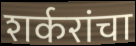
शर्करांचा